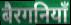
बैरगनियाँ